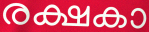
രക്ഷകാ